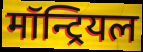
मॉन्ट्रियल